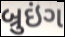
બ્રુઇંગ